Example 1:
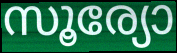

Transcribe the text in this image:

സൂര്യോ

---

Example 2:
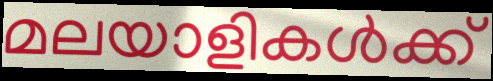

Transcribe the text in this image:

മലയാളികൾക്ക്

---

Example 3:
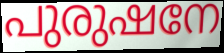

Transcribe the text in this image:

പുരുഷനേ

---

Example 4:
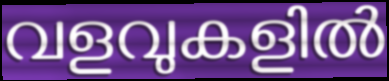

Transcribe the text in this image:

വളവുകളിൽ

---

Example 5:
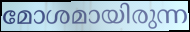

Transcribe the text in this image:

മോശമായിരുന്ന